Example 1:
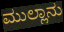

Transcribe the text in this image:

ಮುಲ್ಲಾನು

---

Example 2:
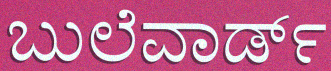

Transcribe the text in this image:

ಬುಲೆವಾರ್ಡ್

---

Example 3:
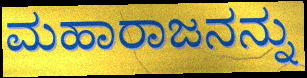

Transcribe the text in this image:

ಮಹಾರಾಜನನ್ನು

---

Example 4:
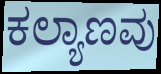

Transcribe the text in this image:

ಕಲ್ಯಾಣವು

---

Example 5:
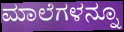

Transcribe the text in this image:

ಮಾಲೆಗಳನ್ನೂ